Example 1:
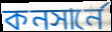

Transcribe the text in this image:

কনসার্নে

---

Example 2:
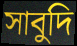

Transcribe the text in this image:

সাবুদি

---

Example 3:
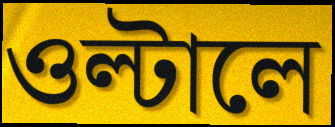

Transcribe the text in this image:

ওল্টালে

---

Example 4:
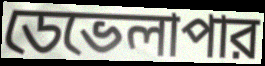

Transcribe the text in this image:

ডেভেলাপার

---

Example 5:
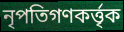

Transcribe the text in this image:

নৃপতিগণকর্ত্তৃক